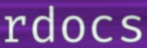
rdocs